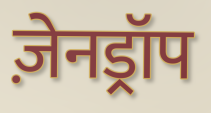
ज़ेनड्रॉप